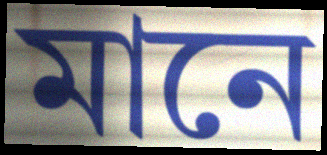
মানে